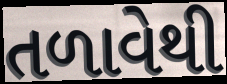
તળાવેથી